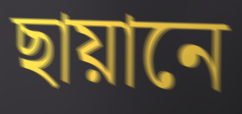
ছায়ানে